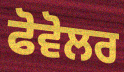
ਫੋਵੋਲਰ